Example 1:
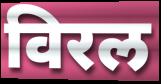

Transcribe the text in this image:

विरल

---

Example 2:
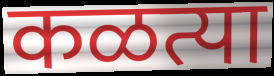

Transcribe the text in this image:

कळत्या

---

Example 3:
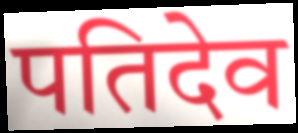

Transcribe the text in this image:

पतिदेव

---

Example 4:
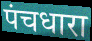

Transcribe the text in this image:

पंचधारा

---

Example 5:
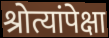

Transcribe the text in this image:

श्रोत्यांपेक्षा